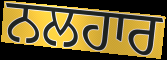
ਨਲਹਾਰ